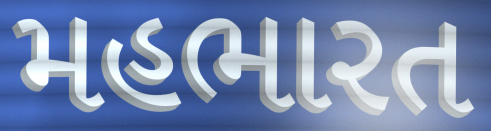
મહભારત